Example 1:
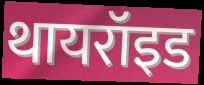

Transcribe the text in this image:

थायरॉइड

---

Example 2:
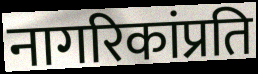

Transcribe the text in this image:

नागरिकांप्रति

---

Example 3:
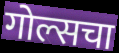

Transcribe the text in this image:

गोल्सचा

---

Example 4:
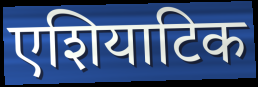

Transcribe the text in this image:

एशियाटिक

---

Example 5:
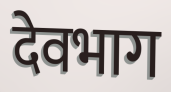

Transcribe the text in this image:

देवभाग